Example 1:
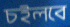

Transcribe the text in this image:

চইলবে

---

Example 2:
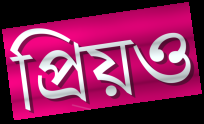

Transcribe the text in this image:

প্রিয়ও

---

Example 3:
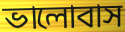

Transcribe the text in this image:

ভালোবাস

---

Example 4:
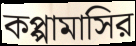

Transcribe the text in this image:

কপ্পামাসির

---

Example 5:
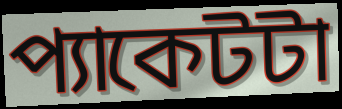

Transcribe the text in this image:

প্যাকেটটা